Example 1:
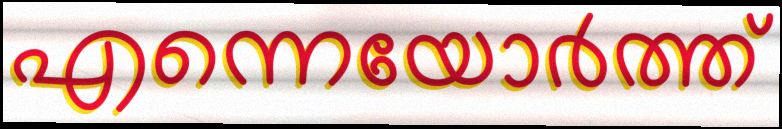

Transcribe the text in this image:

എന്നെയോർത്ത്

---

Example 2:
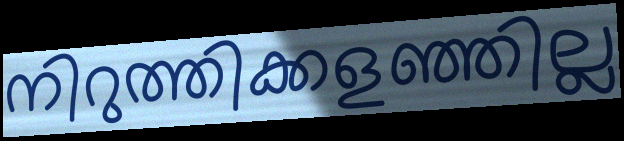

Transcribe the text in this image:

നിറുത്തിക്കളഞ്ഞില്ല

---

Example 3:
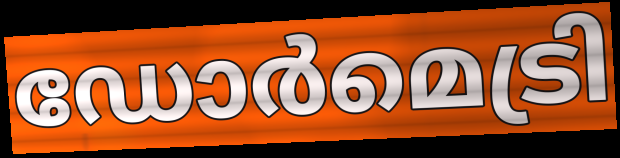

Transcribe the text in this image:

ഡോർമെട്രി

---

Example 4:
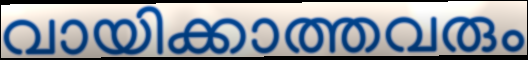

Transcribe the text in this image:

വായിക്കാത്തവരും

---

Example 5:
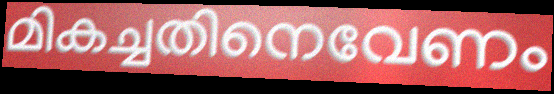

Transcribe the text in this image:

മികച്ചതിനെവേണം